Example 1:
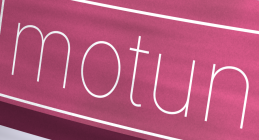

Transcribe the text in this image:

motun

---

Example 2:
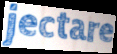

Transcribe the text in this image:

jectare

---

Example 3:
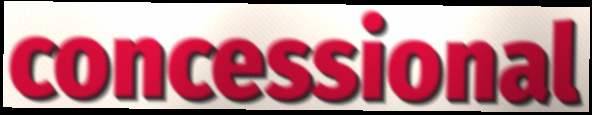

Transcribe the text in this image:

concessional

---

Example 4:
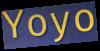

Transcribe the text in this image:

Yoyo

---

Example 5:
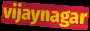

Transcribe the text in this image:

vijaynagar